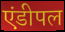
एंडीपल